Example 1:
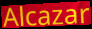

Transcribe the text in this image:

Alcazar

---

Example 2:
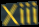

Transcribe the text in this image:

Xiii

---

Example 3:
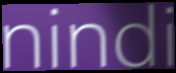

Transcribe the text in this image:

nindi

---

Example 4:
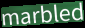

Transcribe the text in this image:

marbled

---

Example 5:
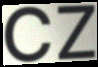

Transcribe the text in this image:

CZ